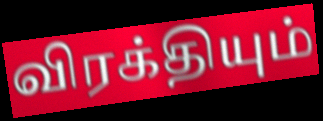
விரக்தியும்